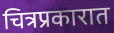
चित्रप्रकारात